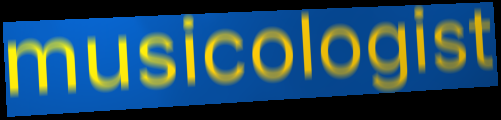
musicologist